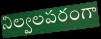
నిల్వలపరంగా